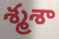
శ్మశా